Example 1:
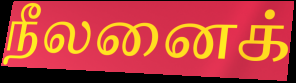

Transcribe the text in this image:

நீலனைக்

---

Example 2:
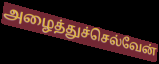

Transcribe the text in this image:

அழைத்துச்செல்வேன்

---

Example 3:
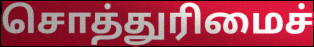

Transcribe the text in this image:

சொத்துரிமைச்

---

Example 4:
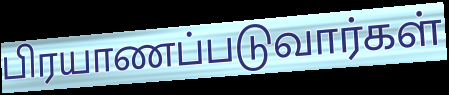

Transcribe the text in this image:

பிரயாணப்படுவார்கள்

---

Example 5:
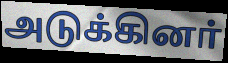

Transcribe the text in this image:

அடுக்கினர்